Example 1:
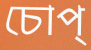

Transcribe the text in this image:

চোপ্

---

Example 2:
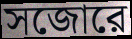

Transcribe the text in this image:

সজোরে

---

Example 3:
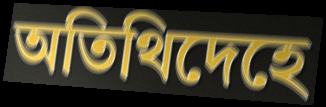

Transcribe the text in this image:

অতিথিদেহে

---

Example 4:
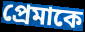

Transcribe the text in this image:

প্রেমাকে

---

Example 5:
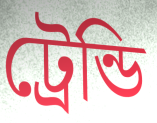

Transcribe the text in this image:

ট্রেন্ডি